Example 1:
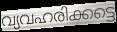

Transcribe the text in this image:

വ്യവഹരിക്കട്ടെ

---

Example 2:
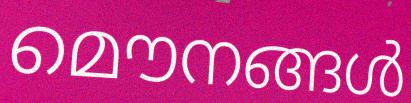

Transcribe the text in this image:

മൌനങ്ങൾ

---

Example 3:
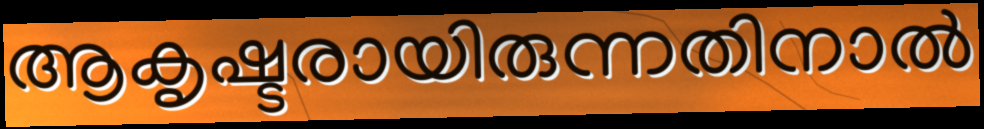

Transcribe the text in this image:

ആകൃഷ്ടരായിരുന്നതിനാൽ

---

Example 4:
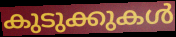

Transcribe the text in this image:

കുടുക്കുകൾ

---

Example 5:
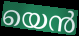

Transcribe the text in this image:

യെൻ